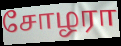
சோழரா